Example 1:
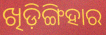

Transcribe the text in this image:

ଖିଡ଼ିଙ୍ଗିହାର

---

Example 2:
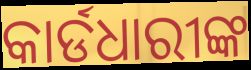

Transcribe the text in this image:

କାର୍ଡଧାରୀଙ୍କ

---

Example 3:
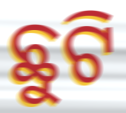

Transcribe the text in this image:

ଛୁଟି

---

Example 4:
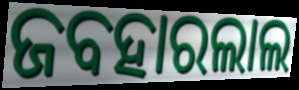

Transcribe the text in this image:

ଜବହାରଲାଲ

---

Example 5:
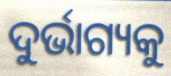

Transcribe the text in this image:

ଦୁର୍ଭାଗ୍ୟକୁ